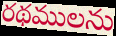
రథములను